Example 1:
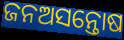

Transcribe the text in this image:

ଜନଅସନ୍ତୋଷ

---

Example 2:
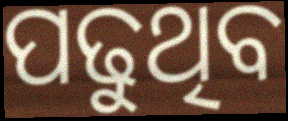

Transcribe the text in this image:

ପଢୁଥିବ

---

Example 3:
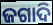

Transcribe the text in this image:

ଜଗାଦି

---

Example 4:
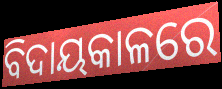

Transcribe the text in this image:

ବିଦାୟକାଳରେ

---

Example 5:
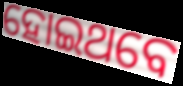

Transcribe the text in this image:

ହୋଇଥବେ